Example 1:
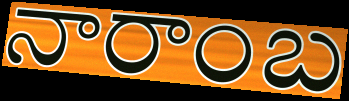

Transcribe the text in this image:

నారాంబ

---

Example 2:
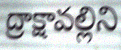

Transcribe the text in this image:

ద్రాక్షావల్లిని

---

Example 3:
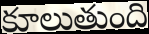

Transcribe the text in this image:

కూలుతుంది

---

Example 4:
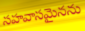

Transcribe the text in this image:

సహవాసమైనను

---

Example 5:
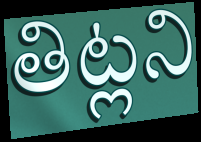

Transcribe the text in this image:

తిట్లని